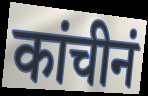
कांचीनं